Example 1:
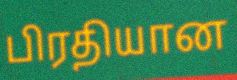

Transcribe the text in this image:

பிரதியான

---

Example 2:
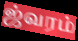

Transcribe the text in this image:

ஜ்வரம்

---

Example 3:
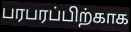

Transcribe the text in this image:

பரபரப்பிற்காக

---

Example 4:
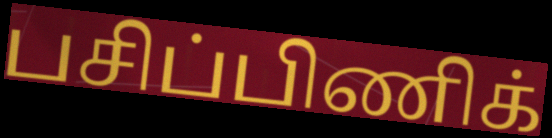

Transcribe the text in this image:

பசிப்பிணிக்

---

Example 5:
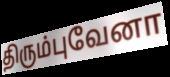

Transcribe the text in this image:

திரும்புவேனா